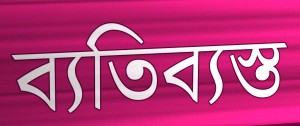
ব্যতিব্যস্ত